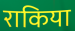
राकिया